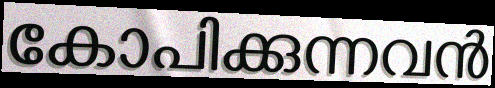
കോപിക്കുന്നവൻ